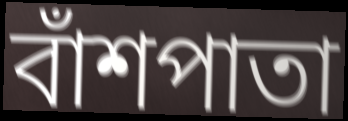
বাঁশপাতা